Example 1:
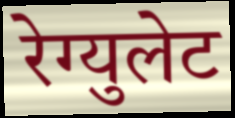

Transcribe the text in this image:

रेग्‍युलेट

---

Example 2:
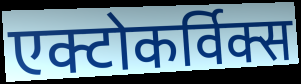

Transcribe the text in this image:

एक्टोकर्विक्स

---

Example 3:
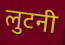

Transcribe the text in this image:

लुटनी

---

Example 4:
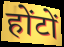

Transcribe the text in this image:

होंटों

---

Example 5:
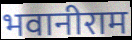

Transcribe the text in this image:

भवानीराम